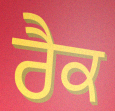
ਰੈਕ